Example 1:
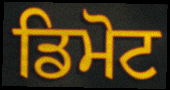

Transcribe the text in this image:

ਡਿਮੋਟ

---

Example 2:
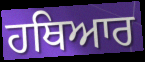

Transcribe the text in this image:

ਹਥਿਆਰ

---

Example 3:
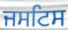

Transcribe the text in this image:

ਜਸਟਿਸ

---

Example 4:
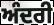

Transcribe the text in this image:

ਅੰਦਰੀ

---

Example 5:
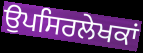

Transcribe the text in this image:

ਉਪਸਿਰਲੇਖਕਾਂ